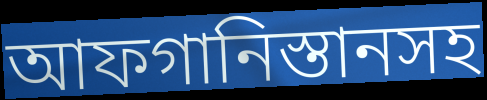
আফগানিস্তানসহ